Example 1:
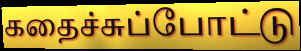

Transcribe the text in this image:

கதைச்சுப்போட்டு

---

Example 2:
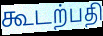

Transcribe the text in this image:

கூடற்பதி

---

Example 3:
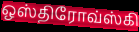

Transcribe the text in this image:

ஒஸ்திரோவ்ஸ்கி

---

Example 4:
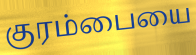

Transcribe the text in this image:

குரம்பையை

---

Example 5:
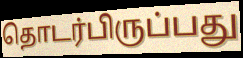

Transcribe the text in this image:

தொடர்பிருப்பது